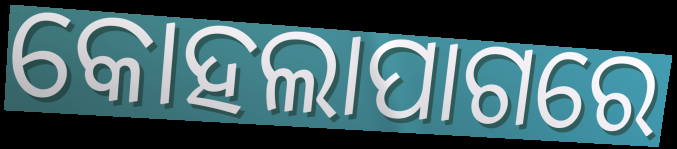
କୋହଲାପାଗରେ